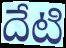
దేటి